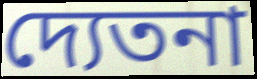
দ্যেতনা